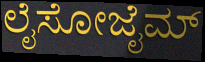
ಲೈಸೋಜೈಮ್